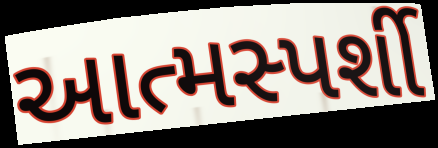
આત્મસ્પર્શી